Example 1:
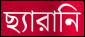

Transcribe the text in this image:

ছ্যারানি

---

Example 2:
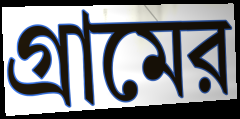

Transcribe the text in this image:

গ্রামের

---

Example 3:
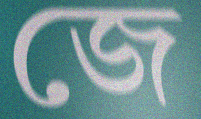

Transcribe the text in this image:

জে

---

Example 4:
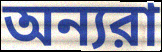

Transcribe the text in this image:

অন্যরা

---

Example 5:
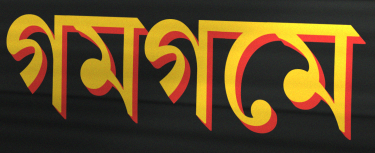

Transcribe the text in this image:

গমগমে